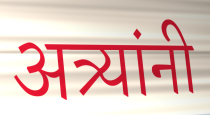
अत्र्यांनी